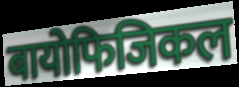
बायोफिजिकल